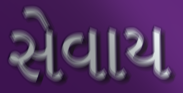
સેવાય